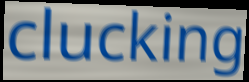
clucking